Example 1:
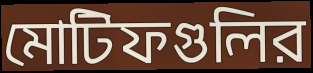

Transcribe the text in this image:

মোটিফগুলির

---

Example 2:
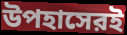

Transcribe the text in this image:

উপহাসেরই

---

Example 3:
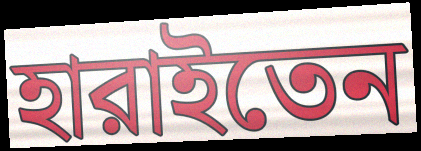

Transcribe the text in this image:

হারাইতেন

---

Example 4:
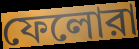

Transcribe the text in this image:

ফেলোরা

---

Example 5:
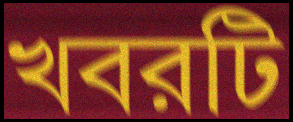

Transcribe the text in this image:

খবরটি